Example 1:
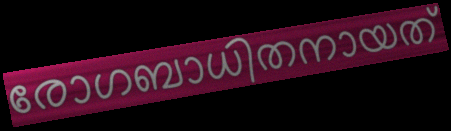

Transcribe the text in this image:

രോഗബാധിതനായത്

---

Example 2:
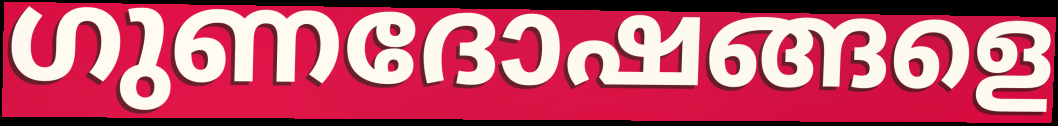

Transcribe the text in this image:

ഗുണദോഷങ്ങളെ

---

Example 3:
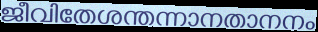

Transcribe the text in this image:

ജീവിതേശന്തന്നാനതാനനം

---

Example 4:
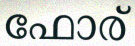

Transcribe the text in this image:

ഫോര്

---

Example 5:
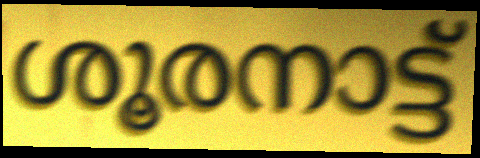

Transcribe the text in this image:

ശൂരനാട്ട്